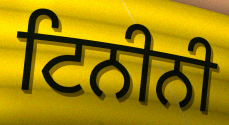
ਟਿਨੀਨੀ